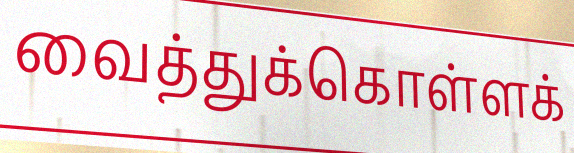
வைத்துக்கொள்ளக்